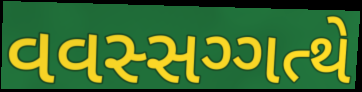
વવસ્સગ્ગત્થે